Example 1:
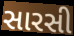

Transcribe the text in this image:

સારસી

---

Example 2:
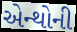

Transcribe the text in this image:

એન્થોની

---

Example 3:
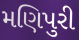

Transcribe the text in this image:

મણિપુરી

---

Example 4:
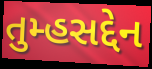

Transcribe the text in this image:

તુમ્હસદ્દેન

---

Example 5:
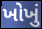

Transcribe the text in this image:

ખોખું